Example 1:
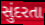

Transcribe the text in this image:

સુંદરતા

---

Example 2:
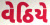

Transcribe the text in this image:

વેઠિયે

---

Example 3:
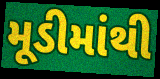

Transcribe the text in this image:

મૂડીમાંથી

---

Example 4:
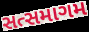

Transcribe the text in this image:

સત્સમાગમ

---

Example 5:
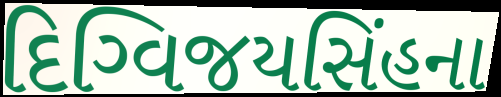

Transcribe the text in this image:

દિગ્વિજયસિંહના